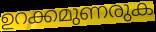
ഉറക്കമുണരുക